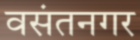
वसंतनगर